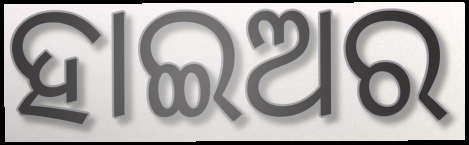
ହାଇଅର